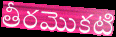
తీరమొకటి